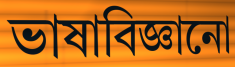
ভাষাবিজ্ঞানো